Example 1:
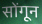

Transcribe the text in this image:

सोंगून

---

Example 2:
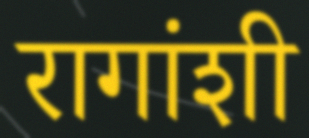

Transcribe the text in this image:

रागांशी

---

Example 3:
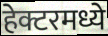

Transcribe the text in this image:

हेक्टरमध्ये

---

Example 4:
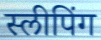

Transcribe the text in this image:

स्लीपिंग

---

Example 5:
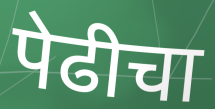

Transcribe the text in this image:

पेढीचा